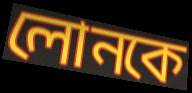
লোনকে